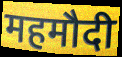
महमौदी